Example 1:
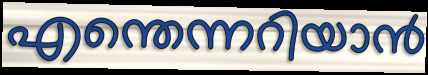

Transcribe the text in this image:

എന്തെന്നറിയാൻ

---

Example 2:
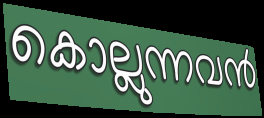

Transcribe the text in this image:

കൊല്ലുന്നവൻ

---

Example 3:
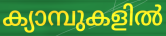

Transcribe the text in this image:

ക്യാമ്പുകളിൽ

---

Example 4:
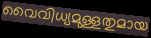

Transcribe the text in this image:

വൈവിധ്യമുള്ളതുമായ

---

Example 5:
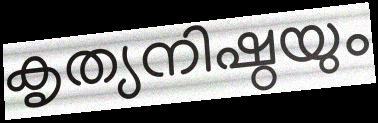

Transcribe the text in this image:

കൃത്യനിഷ്ഠയും